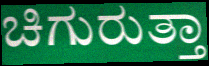
ಚಿಗುರುತ್ತಾ